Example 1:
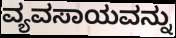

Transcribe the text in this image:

ವ್ಯವಸಾಯವನ್ನು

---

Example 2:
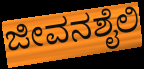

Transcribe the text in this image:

ಜೀವನಶೈಲಿ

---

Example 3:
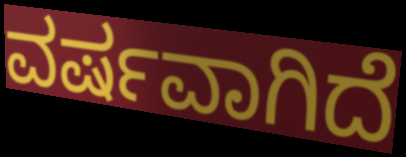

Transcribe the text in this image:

ವರ್ಷವಾಗಿದೆ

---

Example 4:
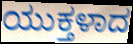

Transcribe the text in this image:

ಯುಕ್ತಳಾದ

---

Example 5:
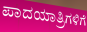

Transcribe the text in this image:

ಪಾದಯಾತ್ರಿಗಳಿಗೆ